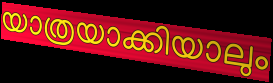
യാത്രയാക്കിയാലും